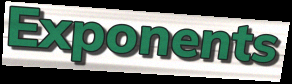
Exponents